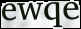
ewqe